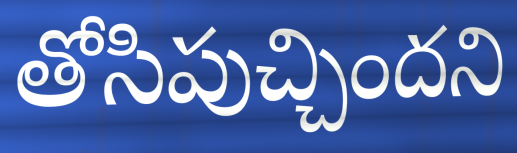
తోసిపుచ్చిందని